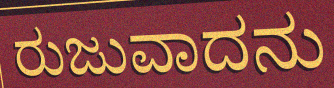
ರುಜುವಾದನು